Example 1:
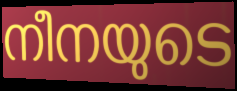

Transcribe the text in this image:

നീനയുടെ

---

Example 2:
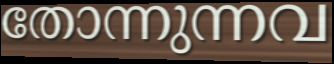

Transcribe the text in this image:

തോന്നുന്നവ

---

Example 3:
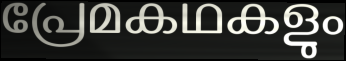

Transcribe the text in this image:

പ്രേമകഥകളും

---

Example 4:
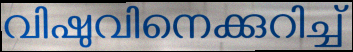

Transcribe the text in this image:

വിഷുവിനെക്കുറിച്ച്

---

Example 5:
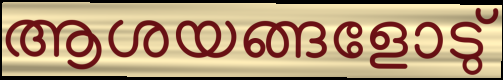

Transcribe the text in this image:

ആശയങ്ങളോടു്